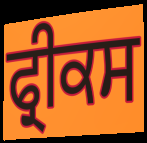
ਫ੍ਰੀਕਸ